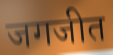
जगजीत